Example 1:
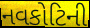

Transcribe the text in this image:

નવકોટિની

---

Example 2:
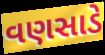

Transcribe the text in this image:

વણસાડે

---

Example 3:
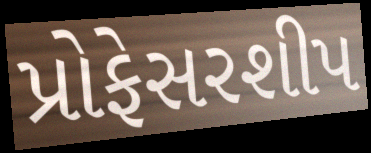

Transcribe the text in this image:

પ્રોફેસરશીપ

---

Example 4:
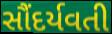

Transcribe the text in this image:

સૌંદર્યવતી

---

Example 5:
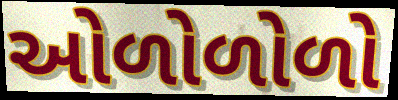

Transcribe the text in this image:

ઓળોળોળો